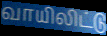
வாயிலிட்டு